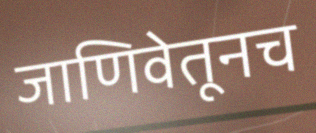
जाणिवेतूनच